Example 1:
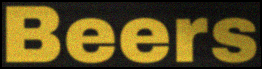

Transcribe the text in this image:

Beers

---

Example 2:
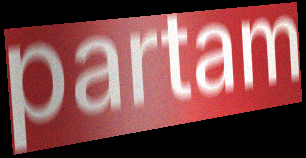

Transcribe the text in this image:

partam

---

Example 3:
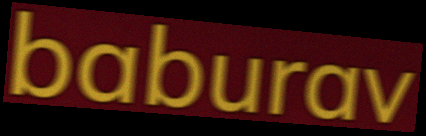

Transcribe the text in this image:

baburav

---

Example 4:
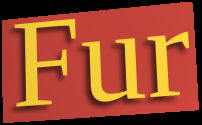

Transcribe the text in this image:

Fur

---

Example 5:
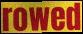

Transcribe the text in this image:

rowed